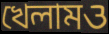
খেলামও